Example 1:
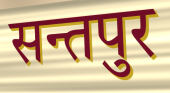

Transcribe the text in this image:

सन्तपुर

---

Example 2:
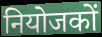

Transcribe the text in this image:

नियोजकों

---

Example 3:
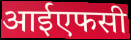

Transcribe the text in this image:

आईएफसी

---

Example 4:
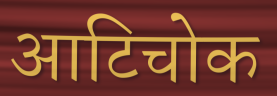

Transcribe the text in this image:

आटिचोक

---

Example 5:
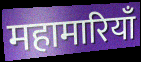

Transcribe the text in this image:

महामारियाँ